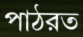
পাঠরত